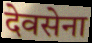
देवसेना